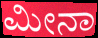
ಮೀನಾ